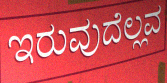
ಇರುವುದೆಲ್ಲವ